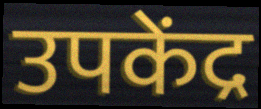
उपकेंद्र